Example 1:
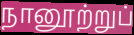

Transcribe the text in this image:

நானூற்றுப்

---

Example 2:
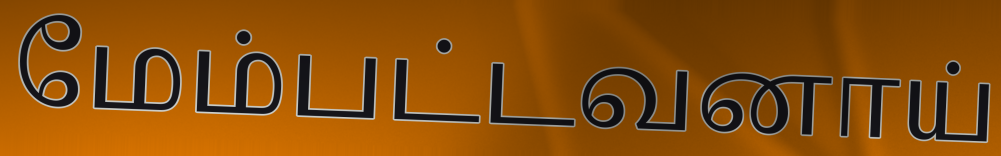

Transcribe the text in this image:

மேம்பட்டவனாய்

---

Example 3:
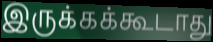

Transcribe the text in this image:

இருக்கக்கூடாது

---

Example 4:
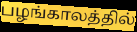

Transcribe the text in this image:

பழங்காலத்தில்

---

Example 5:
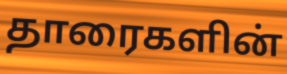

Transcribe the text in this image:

தாரைகளின்